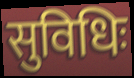
सुविधिः